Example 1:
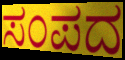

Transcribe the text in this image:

ಸಂಪದ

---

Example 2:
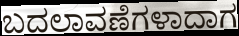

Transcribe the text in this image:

ಬದಲಾವಣೆಗಳಾದಾಗ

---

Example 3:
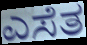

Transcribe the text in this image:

ಎಸೆತ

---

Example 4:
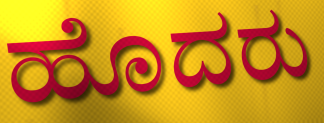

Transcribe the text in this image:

ಹೊದರು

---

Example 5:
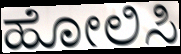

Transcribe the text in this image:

ಹೋಲಿಸಿ